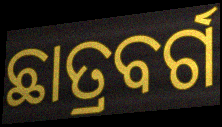
ଛାତ୍ରବର୍ଗ